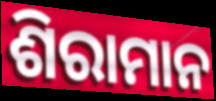
ଶିରାମାନ